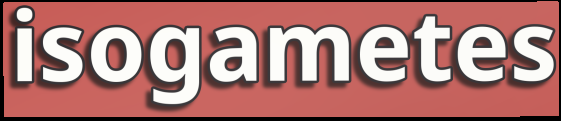
isogametes